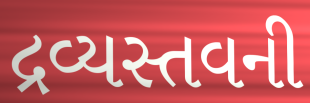
દ્રવ્યસ્તવની